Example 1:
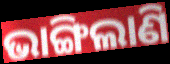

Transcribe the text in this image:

ଭାଙ୍ଗିଲାଣି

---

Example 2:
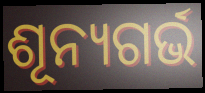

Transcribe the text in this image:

ଶୂନ୍ୟଗର୍ଭ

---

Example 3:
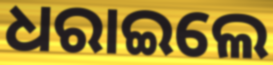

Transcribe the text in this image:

ଧରାଇଲେ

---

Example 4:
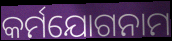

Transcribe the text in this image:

କର୍ମଯୋଗନାମ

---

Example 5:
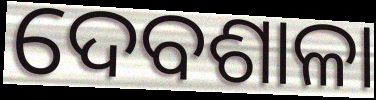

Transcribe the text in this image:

ଦେବଶାଳା